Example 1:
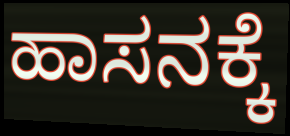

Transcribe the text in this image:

ಹಾಸನಕ್ಕೆ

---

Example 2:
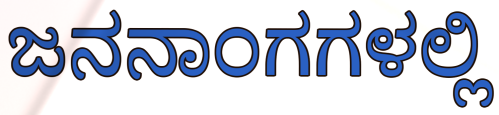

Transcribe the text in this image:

ಜನನಾಂಗಗಳಲ್ಲಿ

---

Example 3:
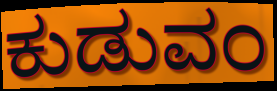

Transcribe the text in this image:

ಕುಡುವಂ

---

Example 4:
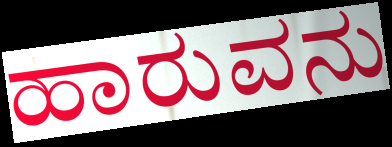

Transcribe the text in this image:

ಹಾರುವನು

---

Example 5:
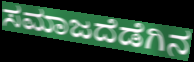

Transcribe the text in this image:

ಸಮಾಜದೆಡೆಗಿನ